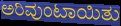
ಅರಿವುಂಟಾಯಿತು